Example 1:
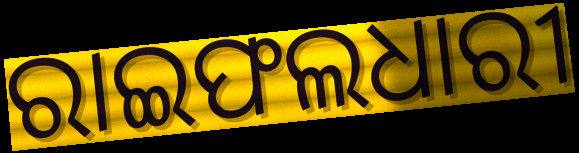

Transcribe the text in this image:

ରାଇଫଲଧାରୀ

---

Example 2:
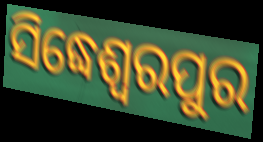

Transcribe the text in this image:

ସିଦ୍ଧେଶ୍ଵରପୁର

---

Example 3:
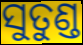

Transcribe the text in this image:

ସୁତୁଣ୍ଡ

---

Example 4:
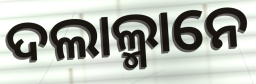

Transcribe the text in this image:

ଦଲାଲ୍ମାନେ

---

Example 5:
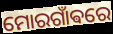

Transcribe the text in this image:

ମୋରଗାଁଵରେ